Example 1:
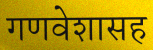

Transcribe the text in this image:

गणवेशासह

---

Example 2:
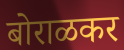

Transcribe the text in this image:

बोराळकर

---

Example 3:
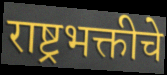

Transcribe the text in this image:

राष्ट्रभक्तीचे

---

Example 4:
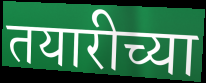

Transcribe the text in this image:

तयारीच्या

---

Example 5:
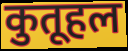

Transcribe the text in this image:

कुतूहल